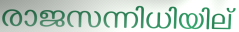
രാജസന്നിധിയില്